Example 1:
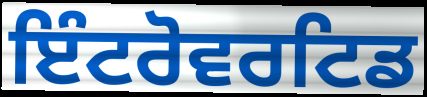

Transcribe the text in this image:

ਇੰਟਰੋਵਰਟਿਡ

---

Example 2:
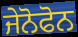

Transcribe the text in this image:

ਜੇਨੋਫੋਨ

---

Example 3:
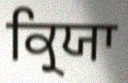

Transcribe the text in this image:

ਕ੍ਰਿਯਾ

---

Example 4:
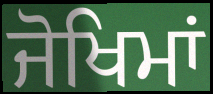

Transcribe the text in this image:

ਜੋਖਿਮਾਂ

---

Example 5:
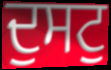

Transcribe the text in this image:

ਦੁਸਟੁ